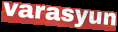
varasyun